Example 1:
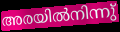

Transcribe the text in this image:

അരയിൽനിന്നു്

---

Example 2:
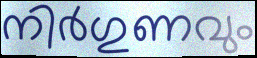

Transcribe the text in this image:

നിർഗുണവും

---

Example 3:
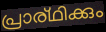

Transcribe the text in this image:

പ്രാര്ഥിക്കും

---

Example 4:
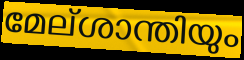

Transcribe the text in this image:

മേല്ശാന്തിയും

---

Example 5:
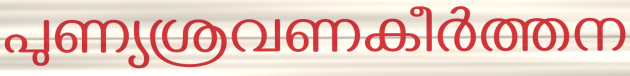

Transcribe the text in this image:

പുണ്യശ്രവണകീർത്തന